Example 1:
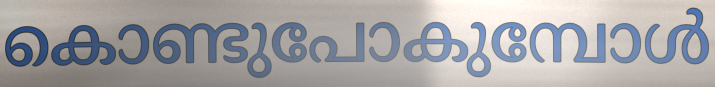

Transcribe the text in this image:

കൊണ്ടുപോകുമ്പോൾ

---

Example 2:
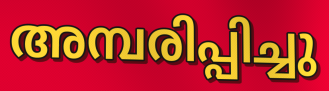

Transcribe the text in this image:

അമ്പരിപ്പിച്ചു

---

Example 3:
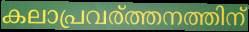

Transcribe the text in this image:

കലാപ്രവര്ത്തനത്തിന്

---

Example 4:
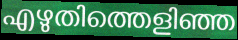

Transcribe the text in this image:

എഴുതിത്തെളിഞ്ഞ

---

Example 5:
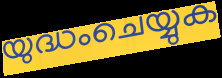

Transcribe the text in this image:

യുദ്ധംചെയ്യുക